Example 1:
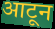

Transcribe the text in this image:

आटून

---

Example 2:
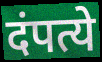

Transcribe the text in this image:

दंपत्ये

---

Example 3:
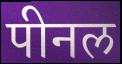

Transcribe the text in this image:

पीनल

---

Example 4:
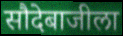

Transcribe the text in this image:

सौदेबाजीला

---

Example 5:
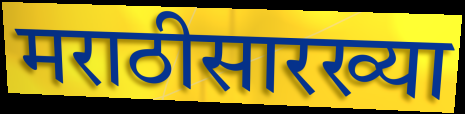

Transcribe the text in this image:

मराठीसारख्या